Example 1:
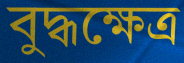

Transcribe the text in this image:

বুদ্ধক্ষেত্ৰ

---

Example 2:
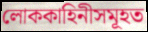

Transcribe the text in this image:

লোককাহিনীসমূহত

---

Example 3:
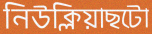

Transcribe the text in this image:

নিউক্লিয়াছটো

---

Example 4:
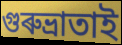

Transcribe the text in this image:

গুৰুভ্ৰাতাই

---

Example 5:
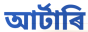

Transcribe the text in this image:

আৰ্টাৰি